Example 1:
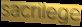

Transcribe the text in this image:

sacrilege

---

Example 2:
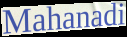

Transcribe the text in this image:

Mahanadi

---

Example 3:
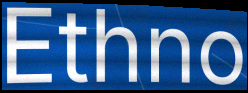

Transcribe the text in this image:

Ethno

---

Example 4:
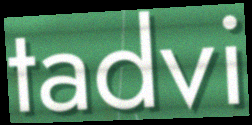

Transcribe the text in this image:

tadvi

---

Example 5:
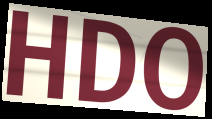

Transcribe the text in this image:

HDO